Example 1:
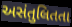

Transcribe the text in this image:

અસંતુલિતતા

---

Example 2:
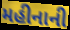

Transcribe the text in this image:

મહીનાની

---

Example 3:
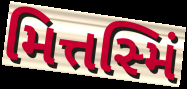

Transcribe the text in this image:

મિત્તસ્મિં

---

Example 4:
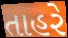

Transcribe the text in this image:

તાહરે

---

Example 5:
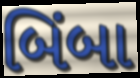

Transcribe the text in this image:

બિંબા